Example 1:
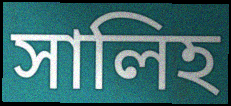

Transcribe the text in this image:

সালিহ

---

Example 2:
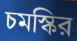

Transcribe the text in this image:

চমস্কির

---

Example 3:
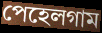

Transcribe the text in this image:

পেহেলগাম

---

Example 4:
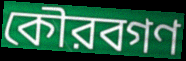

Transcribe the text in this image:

কৌরবগণ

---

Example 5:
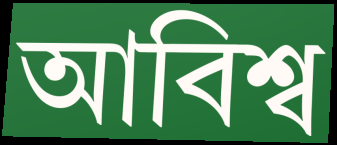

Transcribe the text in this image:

আবিশ্ব